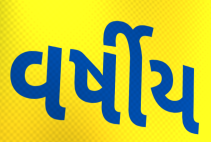
વર્ષીય